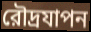
রৌদ্রযাপন